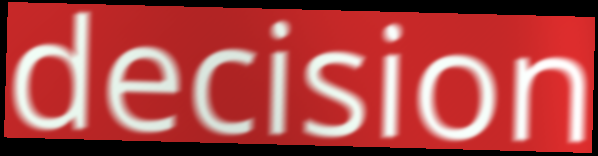
decision